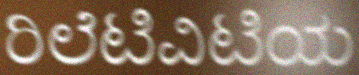
ರಿಲೆಟಿವಿಟಿಯ